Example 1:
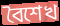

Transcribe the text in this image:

বৈশেখ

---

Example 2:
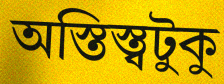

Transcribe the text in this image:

অস্তিস্ত্বটুকু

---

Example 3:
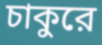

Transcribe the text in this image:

চাকুরে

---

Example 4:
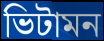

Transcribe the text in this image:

ভিটামন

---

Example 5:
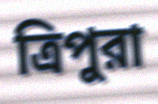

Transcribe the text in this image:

ত্রিপুরা